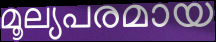
മൂല്യപരമായ